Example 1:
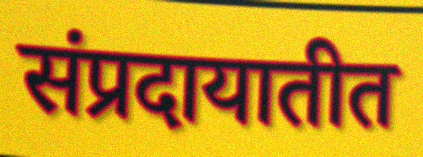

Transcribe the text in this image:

संप्रदायातीत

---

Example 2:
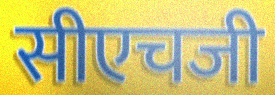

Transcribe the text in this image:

सीएचजी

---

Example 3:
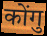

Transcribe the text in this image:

कोंगु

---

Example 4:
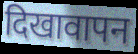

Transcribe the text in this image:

दिखावापन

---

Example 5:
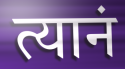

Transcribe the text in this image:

त्यानं